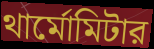
থার্মোমিটার